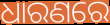
ଧାରଣରେ